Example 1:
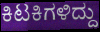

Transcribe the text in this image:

ಕಿಟಕಿಗಳಿದ್ದು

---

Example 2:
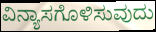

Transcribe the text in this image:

ವಿನ್ಯಾಸಗೊಳಿಸುವುದು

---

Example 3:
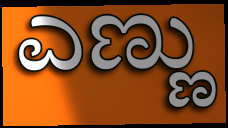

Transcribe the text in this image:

ಎಣ್ಣು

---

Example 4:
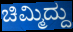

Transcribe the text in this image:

ಚಿಮ್ಮಿದ್ದು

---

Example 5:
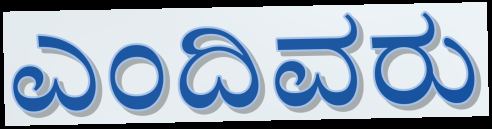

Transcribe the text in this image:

ಎಂದಿವರು